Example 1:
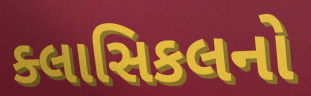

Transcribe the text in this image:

ક્લાસિકલનો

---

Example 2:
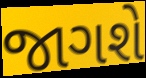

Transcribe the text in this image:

જાગશે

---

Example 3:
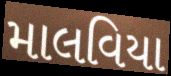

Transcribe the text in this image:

માલવિયા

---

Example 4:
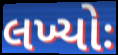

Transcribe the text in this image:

લખ્યોઃ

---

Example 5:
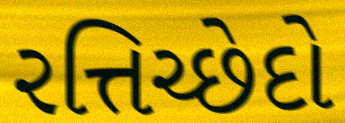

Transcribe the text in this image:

રત્તિચ્છેદો